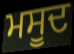
ਮਸੂਦ